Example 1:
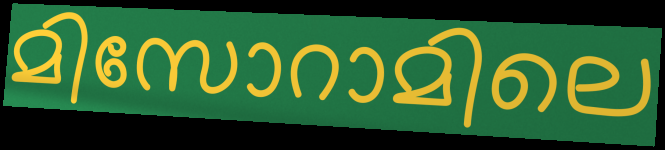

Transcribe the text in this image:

മിസോറാമിലെ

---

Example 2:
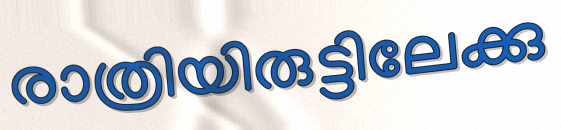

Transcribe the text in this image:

രാത്രിയിരുട്ടിലേക്കു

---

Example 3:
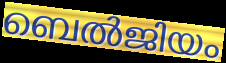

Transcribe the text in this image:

ബെൽജിയം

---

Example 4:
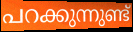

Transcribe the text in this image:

പറക്കുന്നുണ്ട്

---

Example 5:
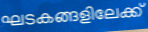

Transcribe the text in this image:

ഘടകങ്ങളിലേക്ക്